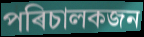
পৰিচালকজন